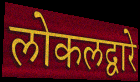
लोकलद्वारे